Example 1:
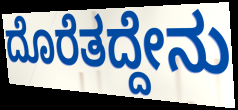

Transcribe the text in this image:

ದೊರೆತದ್ದೇನು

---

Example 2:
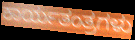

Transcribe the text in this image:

ಕಾರ್ಯತಂತ್ರಗಳು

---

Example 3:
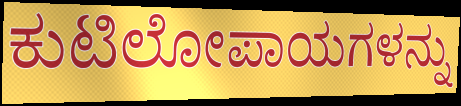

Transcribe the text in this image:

ಕುಟಿಲೋಪಾಯಗಳನ್ನು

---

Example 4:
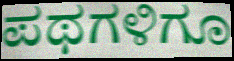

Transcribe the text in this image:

ಪಥಗಳಿಗೂ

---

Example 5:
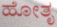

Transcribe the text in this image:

ಹೋತೃ